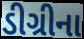
ડીગ્રીના